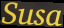
Susa